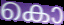
കൊ